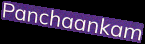
Panchaankam